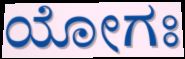
ಯೋಗಃ